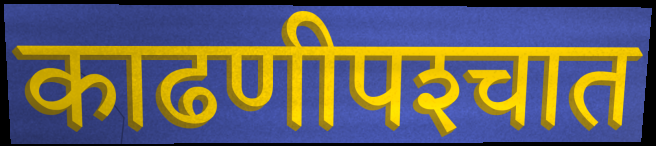
काढणीपश्‍चात